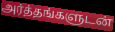
அர்த்தங்களுடன்